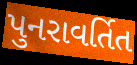
પુનરાવર્તિત